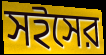
সইসের